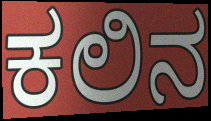
ಕಲಿನ